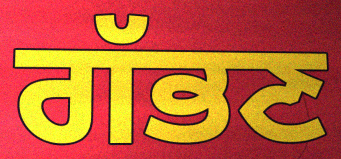
ਗੱਭਣ